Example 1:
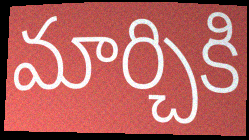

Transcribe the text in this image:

మార్చికి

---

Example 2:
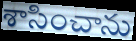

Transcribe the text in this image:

శాసించాను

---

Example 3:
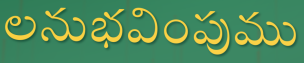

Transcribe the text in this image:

లనుభవింపుము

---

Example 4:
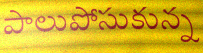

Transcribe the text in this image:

పాలుపోసుకున్న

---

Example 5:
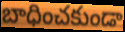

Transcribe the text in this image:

బాధించకుండా